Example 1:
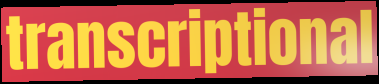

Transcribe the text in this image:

transcriptional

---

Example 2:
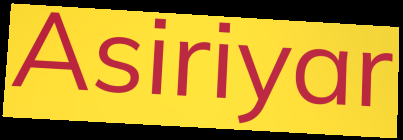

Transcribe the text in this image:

Asiriyar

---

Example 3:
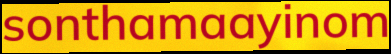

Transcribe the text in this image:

sonthamaayinom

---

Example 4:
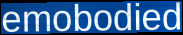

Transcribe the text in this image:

emobodied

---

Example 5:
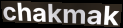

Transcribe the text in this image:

chakmak